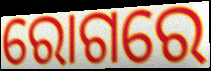
ରୋଗରେ